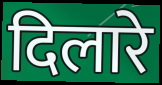
दिलारे